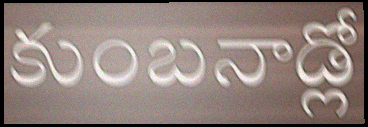
కుంబనాడ్లో